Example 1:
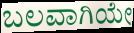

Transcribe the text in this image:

ಬಲವಾಗಿಯೇ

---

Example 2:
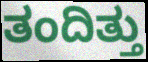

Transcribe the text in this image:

ತಂದಿತ್ತು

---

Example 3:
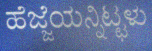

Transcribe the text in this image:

ಹೆಜ್ಜೆಯನ್ನಿಟ್ಟಳು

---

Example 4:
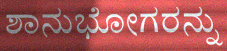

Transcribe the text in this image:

ಶಾನುಭೋಗರನ್ನು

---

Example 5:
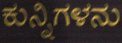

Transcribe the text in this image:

ಕುನ್ನಿಗಳನು